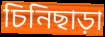
চিনিছাড়া